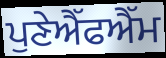
ਪੁਣੇਐੱਫਐੱਮ